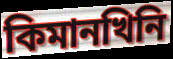
কিমানখিনি